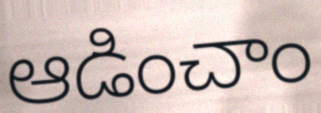
ఆడించాం